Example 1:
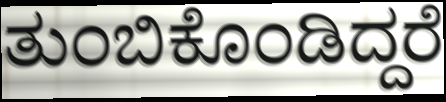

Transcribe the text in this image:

ತುಂಬಿಕೊಂಡಿದ್ದರೆ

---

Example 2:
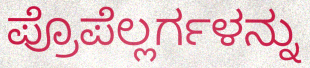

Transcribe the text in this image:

ಪ್ರೊಪೆಲ್ಲರ್ಗಳನ್ನು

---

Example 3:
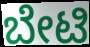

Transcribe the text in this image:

ಬೇಟಿ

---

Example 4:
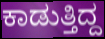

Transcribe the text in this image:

ಕಾಡುತ್ತಿದ್ದ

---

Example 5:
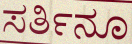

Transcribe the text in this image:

ಸರ್ತಿನೂ